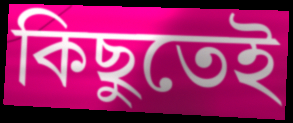
কিছুতেই